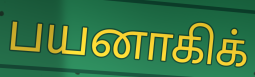
பயனாகிக்